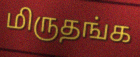
மிருதங்க